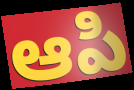
ఆపి